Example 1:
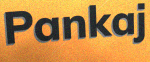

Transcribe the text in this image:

Pankaj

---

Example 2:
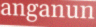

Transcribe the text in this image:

anganun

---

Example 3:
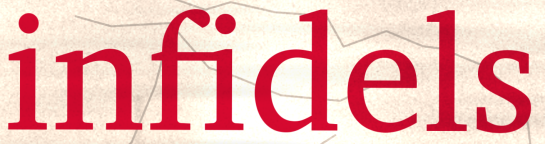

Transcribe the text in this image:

infidels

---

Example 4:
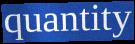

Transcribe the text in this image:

quantity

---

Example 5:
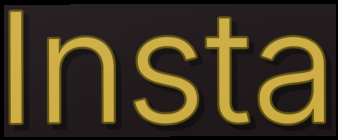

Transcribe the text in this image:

Insta